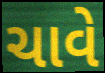
ચાવે